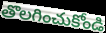
తొలగించుకోండి